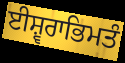
ਈਸ਼੍ਵਰਾਭਿਮਤੰ